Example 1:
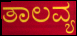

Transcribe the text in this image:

ತಾಲವ್ಯ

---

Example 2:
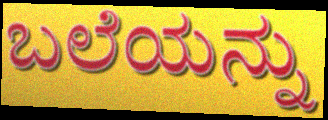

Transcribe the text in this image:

ಬಲೆಯನ್ನು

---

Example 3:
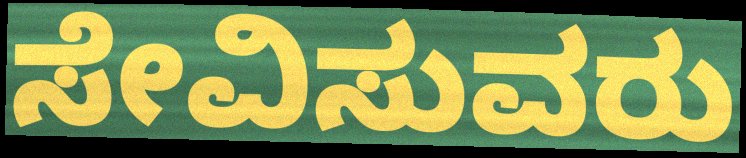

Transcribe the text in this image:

ಸೇವಿಸುವರು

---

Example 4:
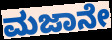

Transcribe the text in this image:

ಮಜಾನೇ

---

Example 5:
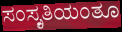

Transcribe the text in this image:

ಸಂಸ್ಕೃತಿಯಂತೂ